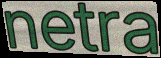
netra